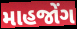
માહજોંગ